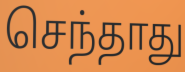
செந்தாது